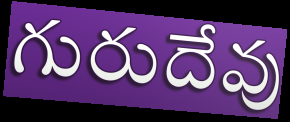
గురుదేవు